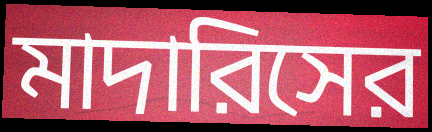
মাদারিসের